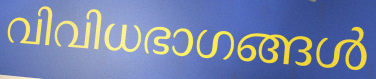
വിവിധഭാഗങ്ങൾ